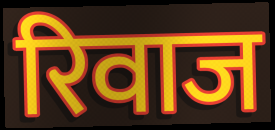
रिवाज